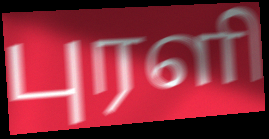
புரளி